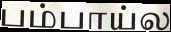
பம்பாய்ல